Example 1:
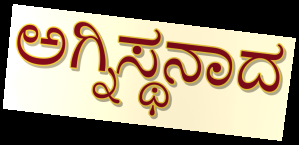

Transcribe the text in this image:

ಅಗ್ನಿಸ್ಥನಾದ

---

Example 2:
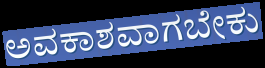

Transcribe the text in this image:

ಅವಕಾಶವಾಗಬೇಕು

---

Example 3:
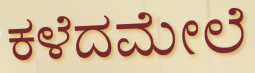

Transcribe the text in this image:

ಕಳೆದಮೇಲೆ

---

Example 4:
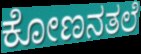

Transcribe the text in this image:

ಕೋಣನತಲೆ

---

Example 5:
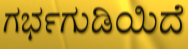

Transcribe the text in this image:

ಗರ್ಭಗುಡಿಯಿದೆ